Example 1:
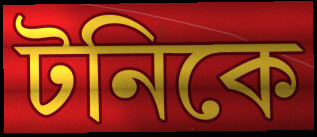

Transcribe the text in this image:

টনিকে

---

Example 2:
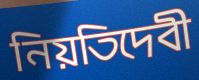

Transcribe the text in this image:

নিয়তিদেবী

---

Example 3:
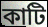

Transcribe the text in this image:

কাটি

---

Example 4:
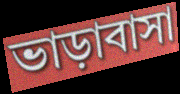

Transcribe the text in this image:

ভাড়াবাসা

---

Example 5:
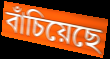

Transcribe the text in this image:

বাঁচিয়েছে